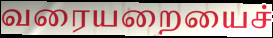
வரையறையைச்